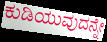
ಕುಡಿಯುವುದನ್ನೇ